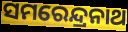
ସମରେନ୍ଦ୍ରନାଥ